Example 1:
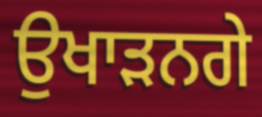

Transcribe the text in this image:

ਉਖਾੜਨਗੇ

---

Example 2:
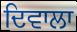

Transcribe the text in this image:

ਦਿਵਾਲਾ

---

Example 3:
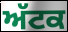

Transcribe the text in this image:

ਅੱਟਕ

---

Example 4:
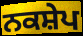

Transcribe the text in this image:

ਨਕਸ਼ੇਪ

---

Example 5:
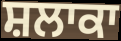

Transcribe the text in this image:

ਸ਼ਲਾਕਾ